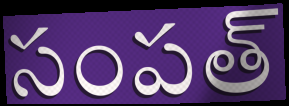
సంపత్